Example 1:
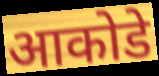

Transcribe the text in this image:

आकोडे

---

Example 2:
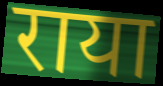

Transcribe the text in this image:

राया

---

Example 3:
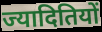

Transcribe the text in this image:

ज्यादितियों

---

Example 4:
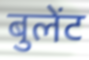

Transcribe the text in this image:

बुलेंट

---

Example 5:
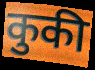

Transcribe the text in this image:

कुकी